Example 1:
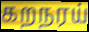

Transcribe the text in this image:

கறநரய்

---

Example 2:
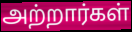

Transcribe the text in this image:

அற்றார்கள்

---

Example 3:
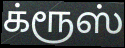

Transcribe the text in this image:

க்ரூஸ்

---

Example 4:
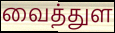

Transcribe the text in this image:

வைத்துள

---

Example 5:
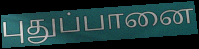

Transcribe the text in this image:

புதுப்பானை